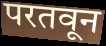
परतवून